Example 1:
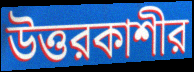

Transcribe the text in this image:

উত্তরকাশীর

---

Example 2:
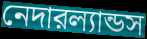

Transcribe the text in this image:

নেদারল্যান্ডস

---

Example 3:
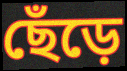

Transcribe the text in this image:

ছেঁড়ে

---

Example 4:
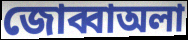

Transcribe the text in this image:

জোব্বাঅলা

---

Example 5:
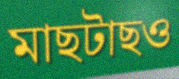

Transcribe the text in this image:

মাছটাছও